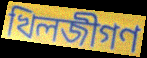
খিলজীগণ